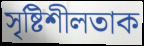
সৃষ্টিশীলতাক